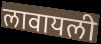
लावायली